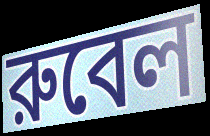
রুবেল